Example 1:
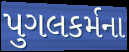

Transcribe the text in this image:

પુગલકર્મના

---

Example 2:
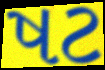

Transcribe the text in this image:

ષટ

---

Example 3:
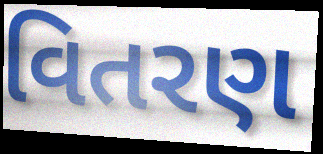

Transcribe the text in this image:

વિતરણ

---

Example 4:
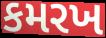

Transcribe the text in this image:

કમરખ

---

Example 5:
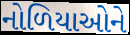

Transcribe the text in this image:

નોળિયાઓને